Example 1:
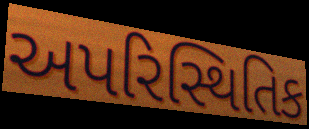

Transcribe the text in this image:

અપરિસ્થિતિક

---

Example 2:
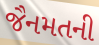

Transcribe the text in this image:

જૈનમતની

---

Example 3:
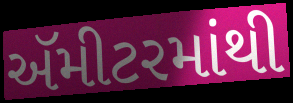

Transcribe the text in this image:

ઍમીટરમાંથી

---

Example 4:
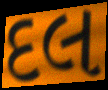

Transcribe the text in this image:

દલ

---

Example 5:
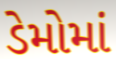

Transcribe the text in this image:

ડેમોમાં